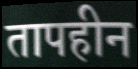
तापहीन